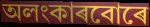
অলংকাৰবোৰে